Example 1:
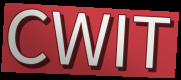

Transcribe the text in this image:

CWIT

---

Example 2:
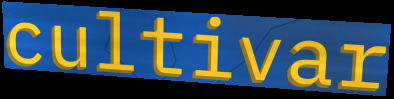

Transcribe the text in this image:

cultivar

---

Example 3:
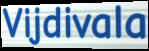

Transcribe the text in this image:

Vijdivala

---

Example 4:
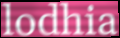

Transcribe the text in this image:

lodhia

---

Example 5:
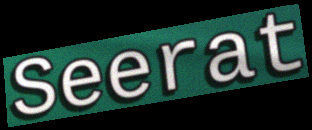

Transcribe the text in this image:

Seerat